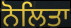
ਨੋਲਿਤਾ